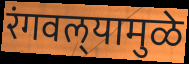
रंगवल्यामुळे